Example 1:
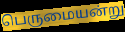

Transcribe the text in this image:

பெருமையன்று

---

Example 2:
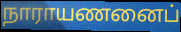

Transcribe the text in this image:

நாராயணனைப்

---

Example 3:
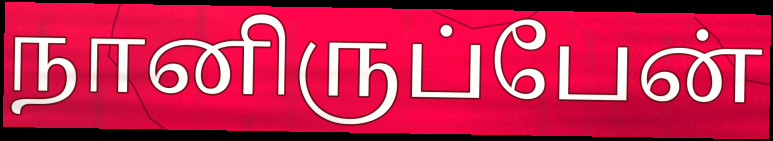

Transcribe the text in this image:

நானிருப்பேன்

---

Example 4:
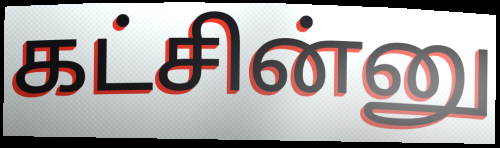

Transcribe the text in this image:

கட்சின்னு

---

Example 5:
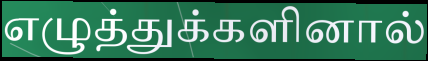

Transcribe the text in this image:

எழுத்துக்களினால்